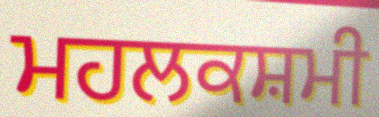
ਮਹਲਕਸ਼ਮੀ